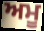
ਅਮੂ